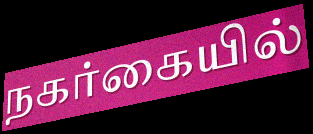
நகர்கையில்